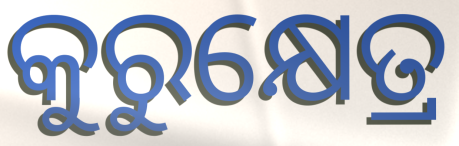
କୁରୁକ୍ଷେତ୍ର